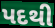
પદથી